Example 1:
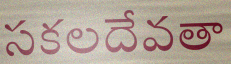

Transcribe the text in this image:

సకలదేవతా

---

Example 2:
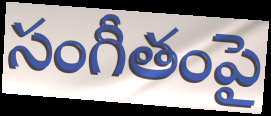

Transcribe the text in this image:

సంగీతంపై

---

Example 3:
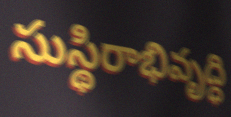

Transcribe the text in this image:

సుస్థిరాభివృద్ధి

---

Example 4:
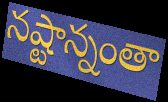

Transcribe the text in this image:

నష్టాన్నంతా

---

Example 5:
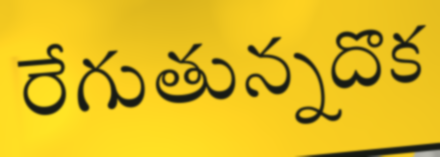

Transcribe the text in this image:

రేగుతున్నదొక